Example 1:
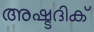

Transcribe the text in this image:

അഷ്ടദിക്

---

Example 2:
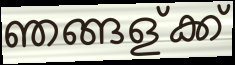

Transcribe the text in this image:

ഞങ്ങള്ക്ക്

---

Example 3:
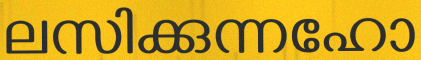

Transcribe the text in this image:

ലസിക്കുന്നഹോ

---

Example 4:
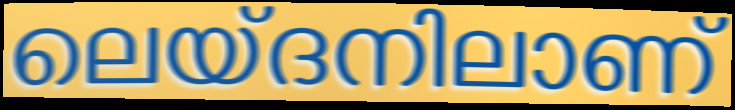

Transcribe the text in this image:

ലെയ്ദനിലാണ്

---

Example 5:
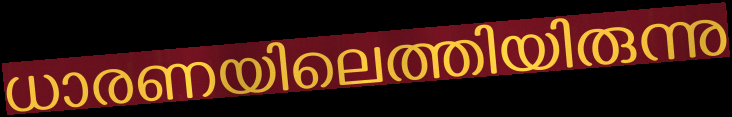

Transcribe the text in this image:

ധാരണയിലെത്തിയിരുന്നു